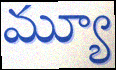
మ్యూ